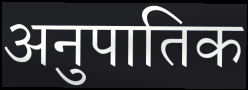
अनुपातिक